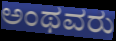
ಅಂಥವರು